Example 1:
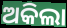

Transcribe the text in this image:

ଅକିଲା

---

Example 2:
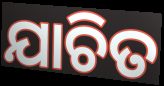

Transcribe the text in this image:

ଯାଚିତ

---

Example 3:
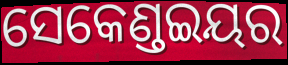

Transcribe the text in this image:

ସେକେଣ୍ଡଇୟର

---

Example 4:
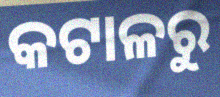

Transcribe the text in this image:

କଟାଳରୁ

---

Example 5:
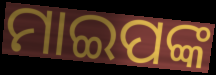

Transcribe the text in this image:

ମାଇପଙ୍କ